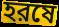
হরষে